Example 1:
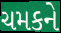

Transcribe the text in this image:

ચમકને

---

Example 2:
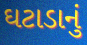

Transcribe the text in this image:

ઘટાડાનું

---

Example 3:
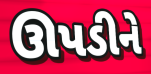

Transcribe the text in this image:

ઊપડીને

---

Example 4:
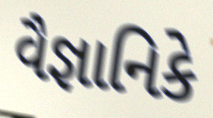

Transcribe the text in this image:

વૈજ્ઞાનિકે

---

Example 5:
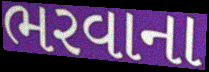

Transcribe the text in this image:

ભરવાના